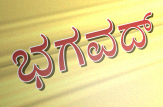
ಭಗವದ್